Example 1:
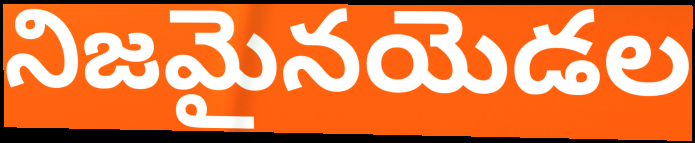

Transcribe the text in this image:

నిజమైనయెడల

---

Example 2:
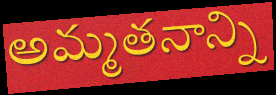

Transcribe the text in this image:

అమ్మతనాన్ని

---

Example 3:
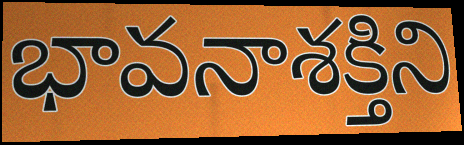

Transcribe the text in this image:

భావనాశక్తిని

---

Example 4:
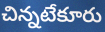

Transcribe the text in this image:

చిన్నటేకూరు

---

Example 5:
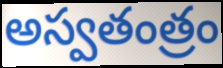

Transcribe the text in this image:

అస్వతంత్రం